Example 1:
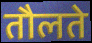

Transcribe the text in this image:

तौलते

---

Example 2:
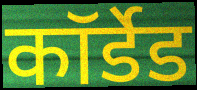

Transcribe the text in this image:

कॉर्डेड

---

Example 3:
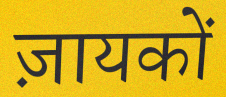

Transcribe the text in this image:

ज़ायकों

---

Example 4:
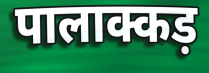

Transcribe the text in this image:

पालाक्कड़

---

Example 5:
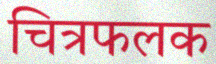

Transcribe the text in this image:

चित्रफलक